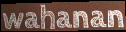
wahanan